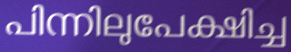
പിന്നിലുപേക്ഷിച്ച